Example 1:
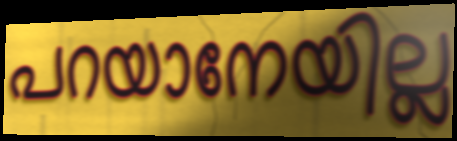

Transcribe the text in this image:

പറയാനേയില്ല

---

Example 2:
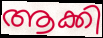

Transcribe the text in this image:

ആക്കി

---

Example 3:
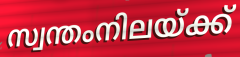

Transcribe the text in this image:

സ്വന്തംനിലയ്ക്ക്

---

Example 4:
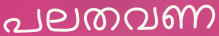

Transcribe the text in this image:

പലതവണ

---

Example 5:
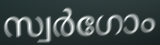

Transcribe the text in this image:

സ്വർഗോം